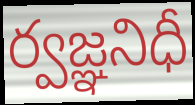
ర్వజ్ఞనిధీ